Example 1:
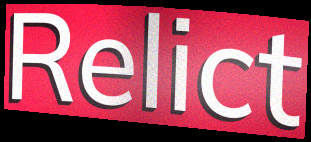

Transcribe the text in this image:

Relict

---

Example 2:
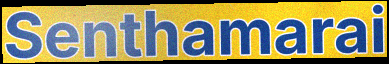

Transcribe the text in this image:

Senthamarai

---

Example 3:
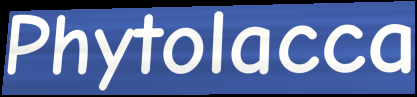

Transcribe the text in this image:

Phytolacca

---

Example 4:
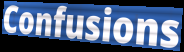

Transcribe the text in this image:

Confusions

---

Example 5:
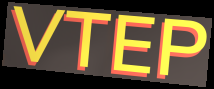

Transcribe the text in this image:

VTEP